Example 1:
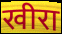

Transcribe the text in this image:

खीरा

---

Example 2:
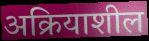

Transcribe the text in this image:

अक्रियाशील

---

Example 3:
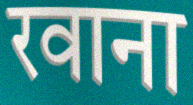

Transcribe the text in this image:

रवाना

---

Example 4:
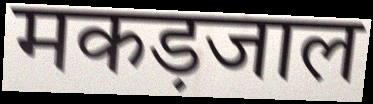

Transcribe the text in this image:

मकड़जाल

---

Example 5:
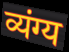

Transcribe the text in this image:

व्यंग्य